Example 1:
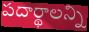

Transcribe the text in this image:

పదార్థాలన్ని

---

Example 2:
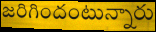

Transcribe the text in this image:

జరిగిందంటున్నారు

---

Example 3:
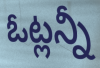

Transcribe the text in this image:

ఓట్లన్నీ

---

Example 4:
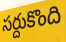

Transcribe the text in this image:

సర్దుకొంది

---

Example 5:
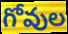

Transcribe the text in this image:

గోవుల